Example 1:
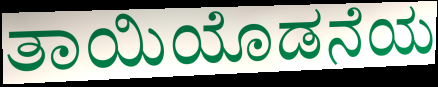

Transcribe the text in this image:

ತಾಯಿಯೊಡನೆಯ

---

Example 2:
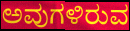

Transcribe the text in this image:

ಅವುಗಳಿರುವ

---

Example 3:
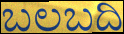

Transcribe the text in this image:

ಬಲಬದಿ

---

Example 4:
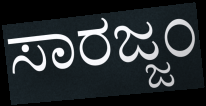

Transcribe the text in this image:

ಸಾರಜ್ಜಂ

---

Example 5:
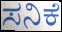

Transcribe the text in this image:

ಸನಿಕೆ